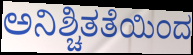
ಅನಿಶ್ಚಿತತೆಯಿಂದ